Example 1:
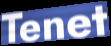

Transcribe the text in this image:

Tenet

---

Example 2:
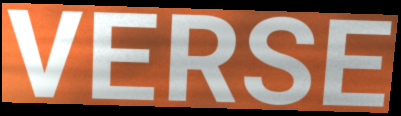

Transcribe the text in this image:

VERSE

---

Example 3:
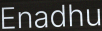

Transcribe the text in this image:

Enadhu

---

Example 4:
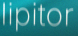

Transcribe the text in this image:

lipitor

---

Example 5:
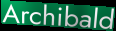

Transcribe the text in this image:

Archibald